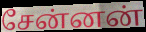
சேன்னன்